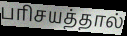
பரிசயத்தால்